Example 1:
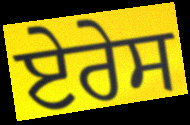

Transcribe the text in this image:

ਏਰੇਸ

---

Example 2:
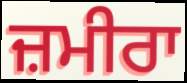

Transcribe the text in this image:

ਜ਼ਮੀਰਾ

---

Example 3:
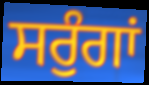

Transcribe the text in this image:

ਸਰੁੰਗਾਂ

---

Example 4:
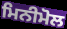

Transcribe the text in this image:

ਮਿਨੀਮੋਲ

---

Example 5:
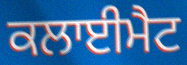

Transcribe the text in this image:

ਕਲਾਈਮੈਟ